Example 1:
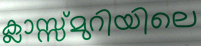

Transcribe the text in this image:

ക്ലാസ്സ്മുറിയിലെ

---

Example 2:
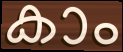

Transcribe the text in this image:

കാം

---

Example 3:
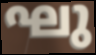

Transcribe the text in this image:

ഘു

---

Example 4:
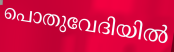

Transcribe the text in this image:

പൊതുവേദിയിൽ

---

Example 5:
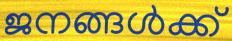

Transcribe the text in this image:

ജനങ്ങൾക്ക്